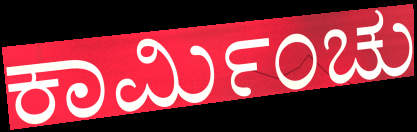
ಕಾರ್ಮಿಂಚು